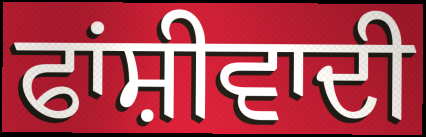
ਫਾਂਸ਼ੀਵਾਦੀ